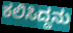
ಕಲಿಸಿದ್ದನು